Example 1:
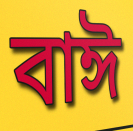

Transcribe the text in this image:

বাঈ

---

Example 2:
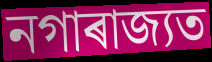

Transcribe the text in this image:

নগাৰাজ্যত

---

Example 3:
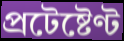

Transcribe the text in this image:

প্ৰটেষ্টেণ্ট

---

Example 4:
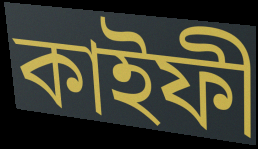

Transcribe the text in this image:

কাইফী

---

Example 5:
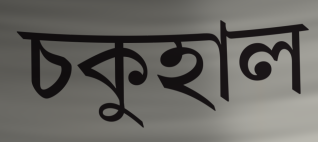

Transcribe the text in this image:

চকুহাল